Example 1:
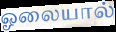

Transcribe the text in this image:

ஓலையால்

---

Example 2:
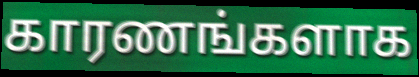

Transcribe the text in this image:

காரணங்களாக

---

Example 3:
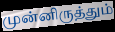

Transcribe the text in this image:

முன்னிருத்தும்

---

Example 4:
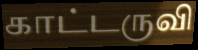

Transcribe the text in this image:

காட்டருவி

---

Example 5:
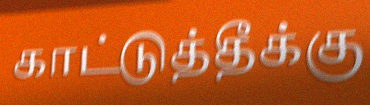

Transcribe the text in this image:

காட்டுத்தீக்கு